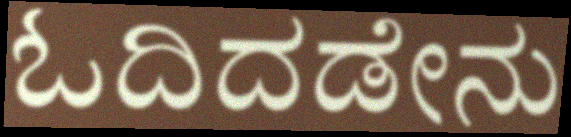
ಓದಿದಡೇನು